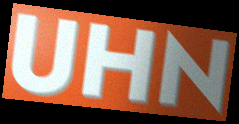
UHN